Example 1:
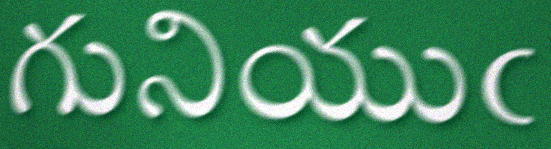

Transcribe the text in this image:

గునియుఁ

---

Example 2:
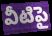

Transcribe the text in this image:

వీటిపై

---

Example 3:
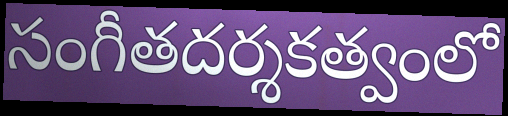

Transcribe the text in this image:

సంగీతదర్శకత్వంలో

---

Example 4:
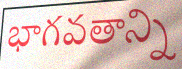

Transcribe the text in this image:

భాగవతాన్ని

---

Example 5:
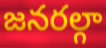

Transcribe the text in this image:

జనరల్గా